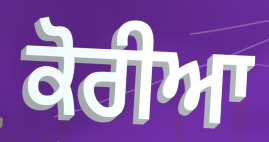
ਕੋਰੀਆ